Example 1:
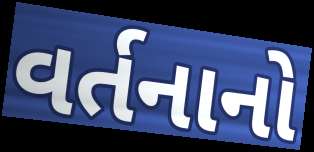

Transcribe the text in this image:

વર્તનાનો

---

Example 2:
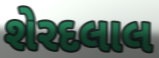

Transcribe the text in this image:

શેરદલાલ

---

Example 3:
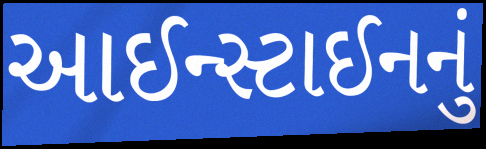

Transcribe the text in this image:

આઈન્સ્ટાઈનનું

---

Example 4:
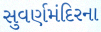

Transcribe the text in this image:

સુવર્ણમંદિરના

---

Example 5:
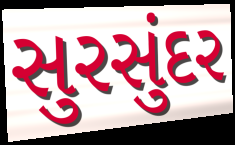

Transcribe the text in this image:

સુરસુંદર